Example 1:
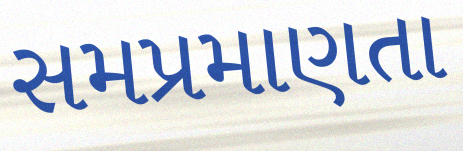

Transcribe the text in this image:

સમપ્રમાણતા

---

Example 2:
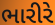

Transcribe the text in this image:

ભારીરે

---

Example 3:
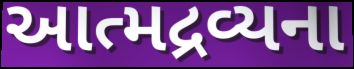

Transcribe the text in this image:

આત્મદ્રવ્યના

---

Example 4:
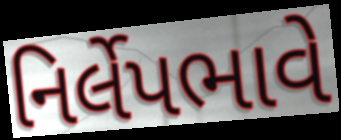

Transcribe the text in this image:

નિર્લેપભાવે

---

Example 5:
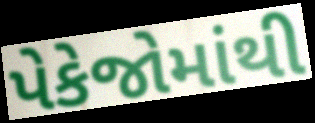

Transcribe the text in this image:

પેકેજોમાંથી